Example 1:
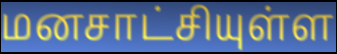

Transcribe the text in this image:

மனசாட்சியுள்ள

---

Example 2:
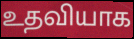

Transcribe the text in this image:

உதவியாக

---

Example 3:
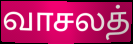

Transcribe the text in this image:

வாசலத்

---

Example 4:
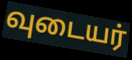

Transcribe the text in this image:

வுடையர்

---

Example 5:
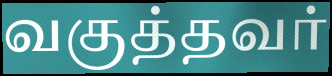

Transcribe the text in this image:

வகுத்தவர்